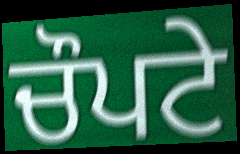
ਚੌਪਟੇ